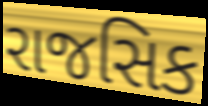
રાજસિક